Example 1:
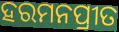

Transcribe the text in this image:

ହରମନପ୍ରୀତ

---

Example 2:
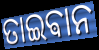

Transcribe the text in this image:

ତାଇଵାନ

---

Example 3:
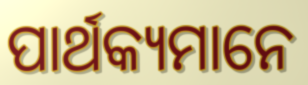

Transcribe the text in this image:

ପାର୍ଥକ୍ୟମାନେ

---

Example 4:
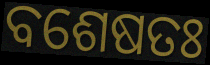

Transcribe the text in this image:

ବଶେଷତଃ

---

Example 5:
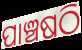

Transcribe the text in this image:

ପାଞ୍ଚଷଠି